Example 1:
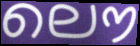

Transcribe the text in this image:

ലൌ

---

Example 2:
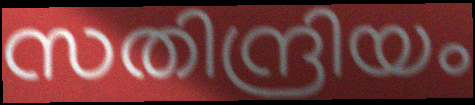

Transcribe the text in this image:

സതിന്ദ്രിയം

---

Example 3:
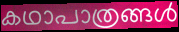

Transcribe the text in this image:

കഥാപാത്രങ്ങൾ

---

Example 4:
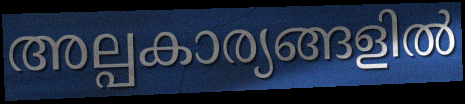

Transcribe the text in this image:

അല്പകാര്യങ്ങളിൽ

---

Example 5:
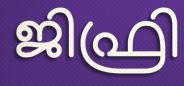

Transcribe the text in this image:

ജിഫ്രി